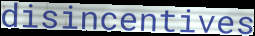
disincentives